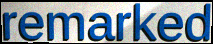
remarked